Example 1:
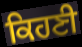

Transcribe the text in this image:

ਕਿਹਣੀ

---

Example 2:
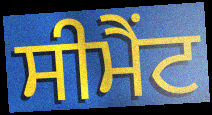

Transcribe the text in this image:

ਸੀਮੈਂਟ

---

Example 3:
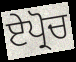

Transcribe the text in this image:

ਏਪ੍ਰੋਚ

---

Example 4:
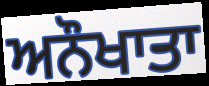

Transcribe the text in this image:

ਅਨੌਖਾਤਾ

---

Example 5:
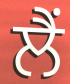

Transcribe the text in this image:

ਲੈਂ